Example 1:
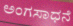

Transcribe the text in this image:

ಅಂಗಸಾಧನೆ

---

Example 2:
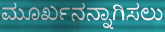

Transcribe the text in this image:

ಮೂರ್ಖನನ್ನಾಗಿಸಲು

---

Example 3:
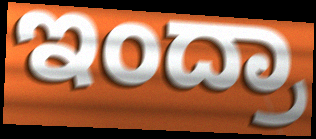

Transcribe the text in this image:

ಇಂದ್ರಾ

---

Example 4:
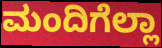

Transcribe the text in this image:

ಮಂದಿಗೆಲ್ಲಾ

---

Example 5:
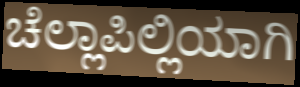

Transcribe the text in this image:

ಚೆಲ್ಲಾಪಿಲ್ಲಿಯಾಗಿ